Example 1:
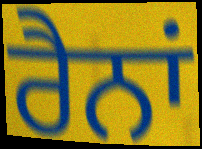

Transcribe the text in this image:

ਰੈਨਾਂ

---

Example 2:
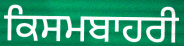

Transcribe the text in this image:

ਕਿਸਮਬਾਹਰੀ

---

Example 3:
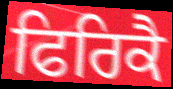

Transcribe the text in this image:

ਫਿਰਿਕੈ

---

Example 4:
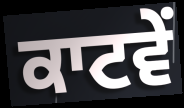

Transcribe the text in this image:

ਕਾਟਵੇਂ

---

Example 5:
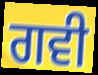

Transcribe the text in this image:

ਗਵੀ